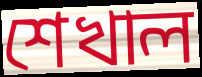
শেখাল